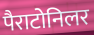
पैराटोनिलर